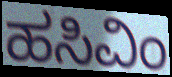
ಹಸಿವಿಂ